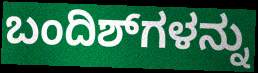
ಬಂದಿಶ್‌ಗಳನ್ನು